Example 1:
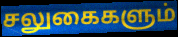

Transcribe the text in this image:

சலுகைகளும்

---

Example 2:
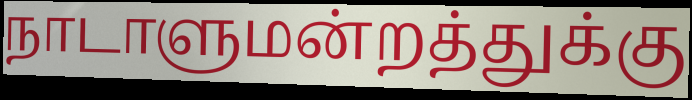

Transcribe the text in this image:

நாடாளுமன்றத்துக்கு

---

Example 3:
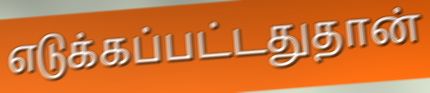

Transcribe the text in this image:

எடுக்கப்பட்டதுதான்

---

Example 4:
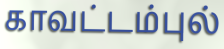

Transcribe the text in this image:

காவட்டம்புல்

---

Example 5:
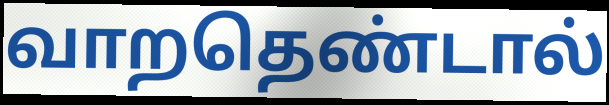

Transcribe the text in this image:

வாறதெண்டால்